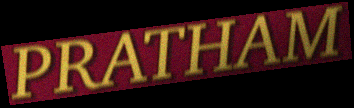
PRATHAM